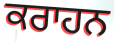
ਕਰਾਹਨ